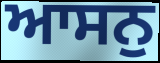
ਆਸਨੁ